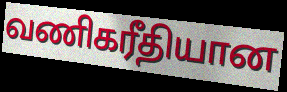
வணிகரீதியான